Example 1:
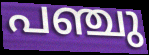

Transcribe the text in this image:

പഞ്ചു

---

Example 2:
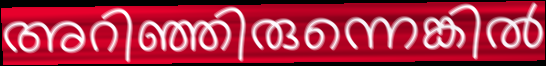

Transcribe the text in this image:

അറിഞ്ഞിരുന്നെങ്കിൽ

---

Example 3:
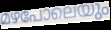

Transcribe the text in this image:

മഴപോലെയും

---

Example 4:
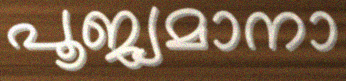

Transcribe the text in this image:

പൂജ്യമാനാ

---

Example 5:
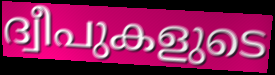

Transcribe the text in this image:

ദ്വീപുകളുടെ